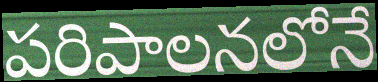
పరిపాలనలోనే